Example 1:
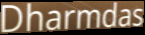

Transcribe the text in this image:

Dharmdas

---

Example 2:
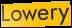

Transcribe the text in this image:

Lowery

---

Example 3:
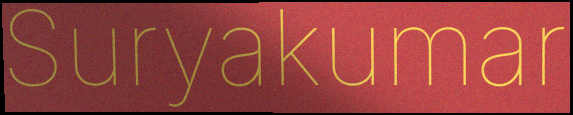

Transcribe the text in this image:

Suryakumar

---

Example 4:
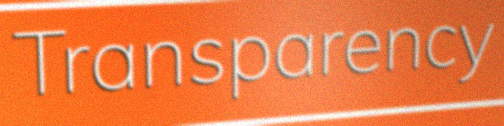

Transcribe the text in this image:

Transparency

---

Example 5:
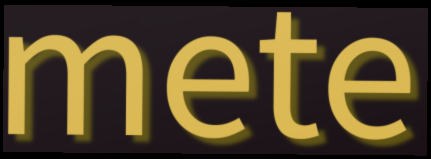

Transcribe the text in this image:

mete